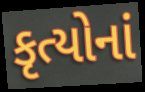
કૃત્યોનાં